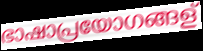
ഭാഷാപ്രയോഗങ്ങള്